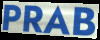
PRAB